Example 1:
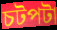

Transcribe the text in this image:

চটপটা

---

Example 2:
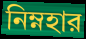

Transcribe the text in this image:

নিম্নহার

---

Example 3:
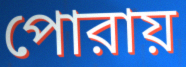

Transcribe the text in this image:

পোরায়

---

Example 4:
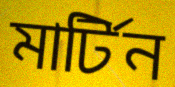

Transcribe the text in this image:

মার্টিন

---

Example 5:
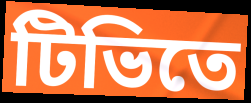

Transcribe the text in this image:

টিভিতে